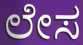
ಲೇಸ